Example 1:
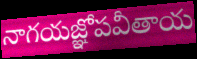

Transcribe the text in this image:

నాగయజ్ఞోపవీతాయ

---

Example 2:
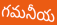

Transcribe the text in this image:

గమనీయ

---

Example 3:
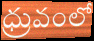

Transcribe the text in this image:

ధ్రువంలో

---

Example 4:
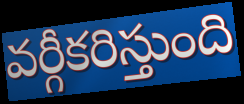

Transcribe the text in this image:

వర్గీకరిస్తుంది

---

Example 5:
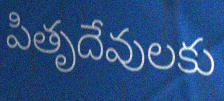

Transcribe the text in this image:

పితృదేవులకు